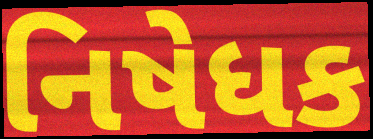
નિષેધક